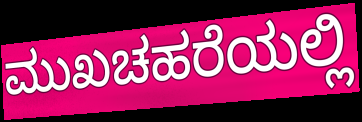
ಮುಖಚಹರೆಯಲ್ಲಿ